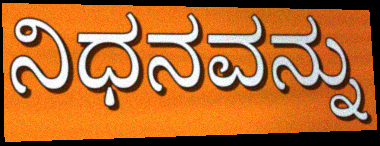
ನಿಧನವನ್ನು